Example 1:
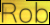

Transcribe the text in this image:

Rob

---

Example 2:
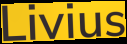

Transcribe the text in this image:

Livius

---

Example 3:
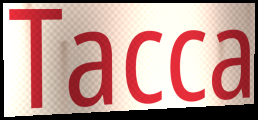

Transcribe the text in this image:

Tacca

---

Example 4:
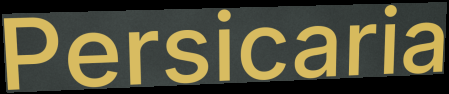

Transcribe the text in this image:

Persicaria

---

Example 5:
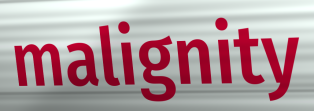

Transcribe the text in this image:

malignity